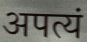
अपत्यं